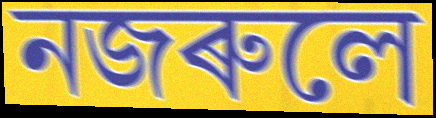
নজৰুলে